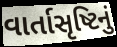
વાર્તાસૃષ્ટિનું